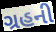
ગ્રહની